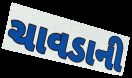
ચાવડાની